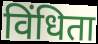
विंधिता